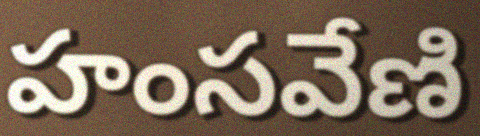
హంసవేణి